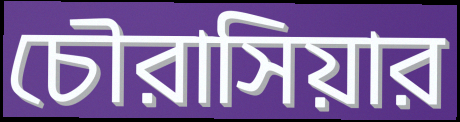
চৌরাসিয়ার